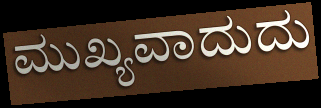
ಮುಖ್ಯವಾದುದು